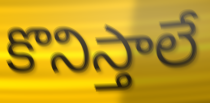
కొనిస్తాలే